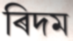
ৰিদম